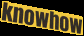
knowhow